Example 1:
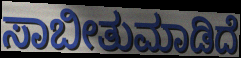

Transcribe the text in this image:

ಸಾಬೀತುಮಾಡಿದೆ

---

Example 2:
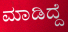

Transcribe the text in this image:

ಮಾಡಿದ್ದೆ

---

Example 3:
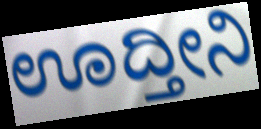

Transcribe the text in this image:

ಊದ್ತೀನಿ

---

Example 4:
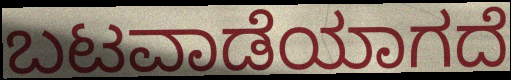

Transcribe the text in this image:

ಬಟವಾಡೆಯಾಗದೆ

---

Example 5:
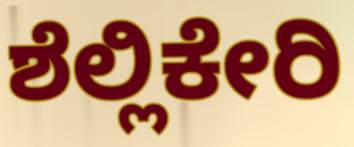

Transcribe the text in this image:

ಶೆಲ್ಲಿಕೇರಿ